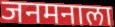
जनमनाला